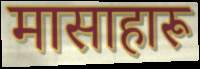
मासाहारू